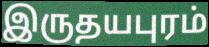
இருதயபுரம்